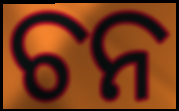
ଚନ